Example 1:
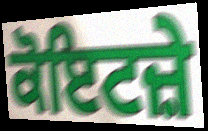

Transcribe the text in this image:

ਕੋਇਟਜ਼ੇ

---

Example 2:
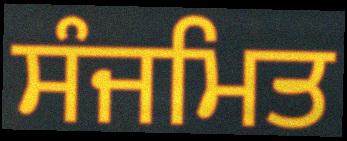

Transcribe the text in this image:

ਸੰਜਮਿਤ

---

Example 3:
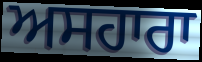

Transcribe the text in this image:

ਅਸਹਾਰਾ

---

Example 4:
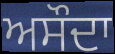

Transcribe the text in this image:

ਅਸੌਦਾ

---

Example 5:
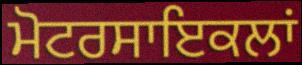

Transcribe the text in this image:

ਮੋਟਰਸਾਇਕਲਾਂ